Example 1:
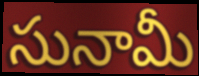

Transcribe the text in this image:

సునామీ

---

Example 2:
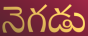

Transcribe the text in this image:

నెగడు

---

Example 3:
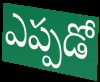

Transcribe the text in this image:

ఎప్పడో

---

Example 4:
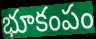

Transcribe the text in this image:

భూకంపం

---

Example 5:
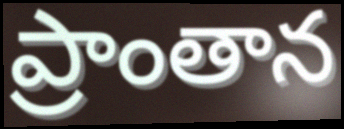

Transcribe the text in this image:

ప్రాంతాన